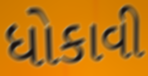
ધોકાવી